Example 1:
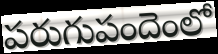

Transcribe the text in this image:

పరుగుపందెంలో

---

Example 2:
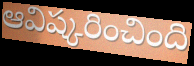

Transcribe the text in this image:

ఆవిష్కరించింది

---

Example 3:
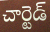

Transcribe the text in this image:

చార్టెడ్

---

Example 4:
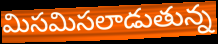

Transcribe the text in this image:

మిసమిసలాడుతున్న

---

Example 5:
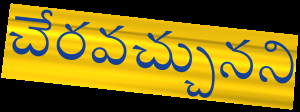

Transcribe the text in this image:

చేరవచ్చునని